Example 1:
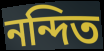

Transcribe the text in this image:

নন্দিত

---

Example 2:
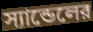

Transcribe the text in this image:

স্যান্ডেলের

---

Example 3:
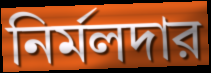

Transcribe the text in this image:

নির্মলদার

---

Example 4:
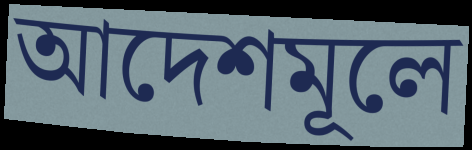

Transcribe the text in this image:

আদেশমূলে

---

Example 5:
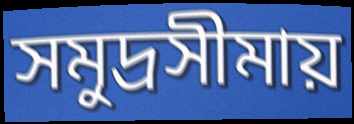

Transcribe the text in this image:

সমুদ্রসীমায়